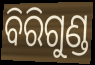
ବିରିଗୁଣ୍ଡ